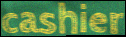
cashier